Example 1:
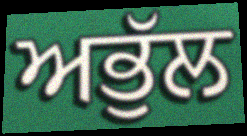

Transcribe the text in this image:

ਅਭੁੱਲ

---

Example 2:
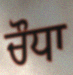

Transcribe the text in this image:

ਚੌਧਾ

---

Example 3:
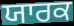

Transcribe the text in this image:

ਯਾਰਕ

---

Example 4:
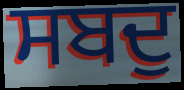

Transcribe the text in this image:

ਸਬਦੁ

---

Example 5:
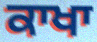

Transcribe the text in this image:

ਕਾਖਾ